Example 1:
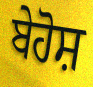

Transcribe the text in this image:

ਬੇਹੋਸ਼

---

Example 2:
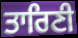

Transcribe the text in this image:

ਤਾਰਿਣੀ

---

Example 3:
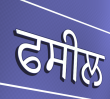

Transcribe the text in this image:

ਫਸੀਲ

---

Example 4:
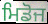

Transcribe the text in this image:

ਮਿਡੋਜ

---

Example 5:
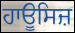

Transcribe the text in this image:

ਹਾਊਸਿਜ਼